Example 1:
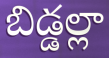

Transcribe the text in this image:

బిడ్డల్లా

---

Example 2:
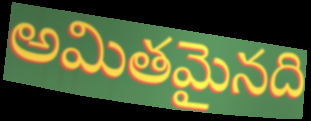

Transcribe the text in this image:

అమితమైనది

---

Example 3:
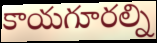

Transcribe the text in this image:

కాయగూరల్ని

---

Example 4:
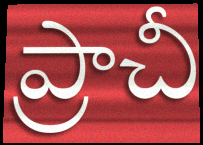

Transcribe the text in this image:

ప్రాచీ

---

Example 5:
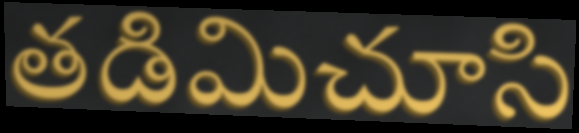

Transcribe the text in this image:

తడిమిచూసి